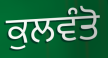
ਕੁਲਵੰਤੋ